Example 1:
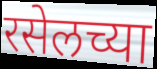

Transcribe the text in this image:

रसेलच्या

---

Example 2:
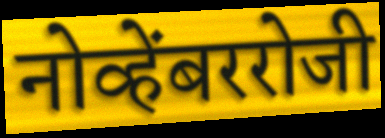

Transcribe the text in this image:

नोव्हेंबररोजी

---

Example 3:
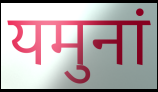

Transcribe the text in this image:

यमुनां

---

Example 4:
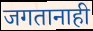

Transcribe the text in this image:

जगतानाही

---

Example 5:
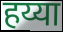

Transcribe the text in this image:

हय्या